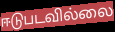
ஈடுபடவில்லை